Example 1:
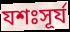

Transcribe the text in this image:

যশঃসূর্য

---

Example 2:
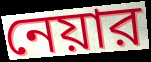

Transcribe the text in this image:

নেয়ার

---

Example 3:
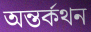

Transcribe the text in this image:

অন্তর্কথন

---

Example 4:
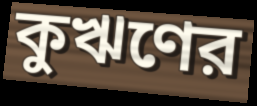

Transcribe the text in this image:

কুঋণের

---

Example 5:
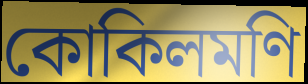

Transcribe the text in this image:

কোকিলমণি